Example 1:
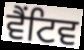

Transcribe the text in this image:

ਵੈਂਟਿਵ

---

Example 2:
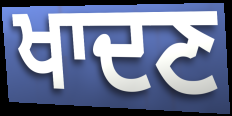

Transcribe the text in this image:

ਖਾਦਣ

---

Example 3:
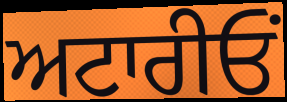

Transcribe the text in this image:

ਅਟਾਰੀਓਂ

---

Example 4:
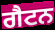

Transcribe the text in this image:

ਗੈਟਨ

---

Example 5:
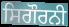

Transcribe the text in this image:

ਸਿਗੌਰਨੀ